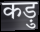
कड़ु